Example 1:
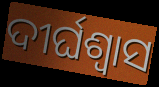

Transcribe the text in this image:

ଦୀର୍ଘଶ୍ଵାସ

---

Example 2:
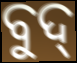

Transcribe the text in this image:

ବୁଦ୍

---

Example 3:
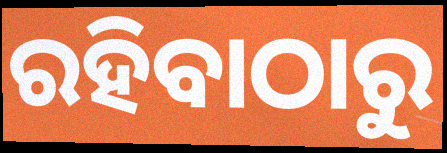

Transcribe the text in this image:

ରହିବାଠାରୁ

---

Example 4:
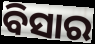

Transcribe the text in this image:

ବିସାର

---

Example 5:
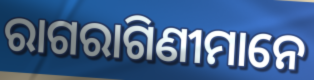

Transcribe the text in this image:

ରାଗରାଗିଣୀମାନେ